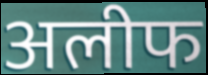
अलीफ